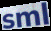
sml